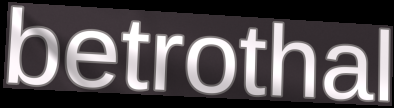
betrothal